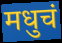
मधुचं